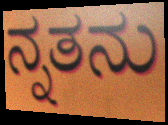
ನ್ನತನು